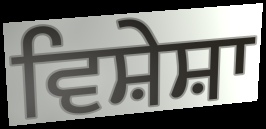
ਵਿਸ਼ੇਸ਼ਾ